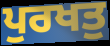
ਪੁਰਖਤੁ